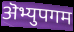
ऄभ्युपगम